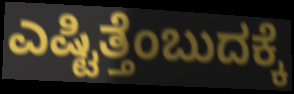
ಎಷ್ಟಿತ್ತೆಂಬುದಕ್ಕೆ